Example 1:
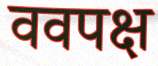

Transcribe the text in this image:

ववपक्ष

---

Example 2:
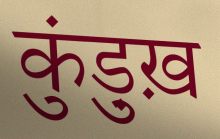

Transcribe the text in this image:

कुंड़ुख़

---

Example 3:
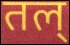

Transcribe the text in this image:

तल्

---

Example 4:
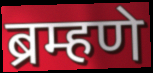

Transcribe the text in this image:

ब्रम्हणे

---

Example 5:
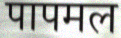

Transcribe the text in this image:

पापमल